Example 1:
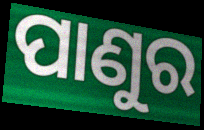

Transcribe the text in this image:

ପାଣୁର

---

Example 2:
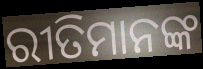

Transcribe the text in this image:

ରୀତିମାନଙ୍କ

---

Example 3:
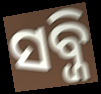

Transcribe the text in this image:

ସବ୍ଜି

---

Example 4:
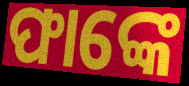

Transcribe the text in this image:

ଫାଙ୍କେ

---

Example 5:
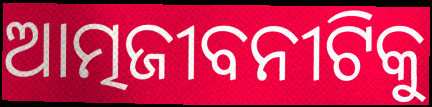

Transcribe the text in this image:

ଆତ୍ମଜୀବନୀଟିକୁ